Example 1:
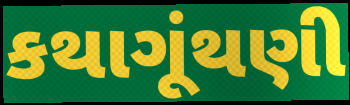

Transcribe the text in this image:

કથાગૂંથણી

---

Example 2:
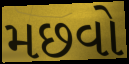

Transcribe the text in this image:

મછવો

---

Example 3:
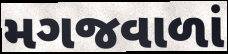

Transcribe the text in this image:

મગજવાળાં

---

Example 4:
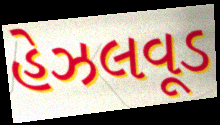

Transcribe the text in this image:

હેઝલવૂડ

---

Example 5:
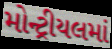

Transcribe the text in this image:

મોન્ટ્રીયલમાં